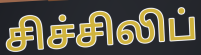
சிச்சிலிப்